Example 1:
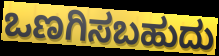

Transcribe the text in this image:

ಒಣಗಿಸಬಹುದು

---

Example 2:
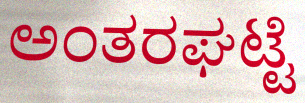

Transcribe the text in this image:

ಅಂತರಘಟ್ಟೆ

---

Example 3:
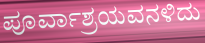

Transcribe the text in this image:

ಪೂರ್ವಾಶ್ರಯವನಳಿದು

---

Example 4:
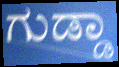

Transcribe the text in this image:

ಗುಡ್ಡಾ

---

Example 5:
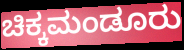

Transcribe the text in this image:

ಚಿಕ್ಕಮಂಡೂರು